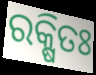
ରକ୍ଷିତଃ